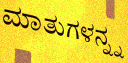
ಮಾತುಗಳನ್ನ್ನ